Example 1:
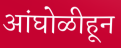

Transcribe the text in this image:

आंघोळीहून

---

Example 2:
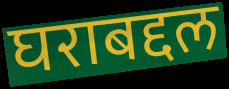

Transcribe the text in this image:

घराबद्दल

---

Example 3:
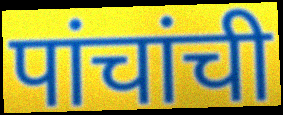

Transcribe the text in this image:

पांचांची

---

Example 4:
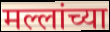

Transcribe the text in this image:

मल्लांच्या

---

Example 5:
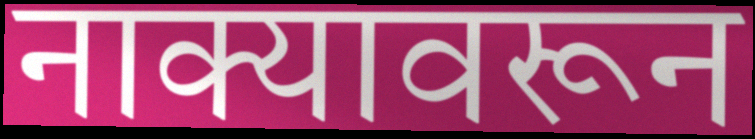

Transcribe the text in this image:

नाक्यावरून